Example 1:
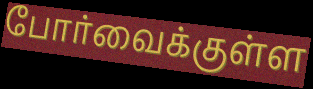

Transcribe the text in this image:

போர்வைக்குள்ள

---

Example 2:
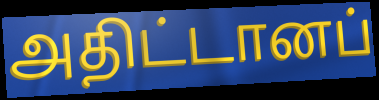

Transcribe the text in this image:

அதிட்டானப்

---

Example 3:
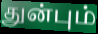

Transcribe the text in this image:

துன்பும்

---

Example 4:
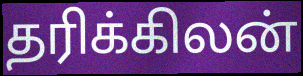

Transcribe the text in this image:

தரிக்கிலன்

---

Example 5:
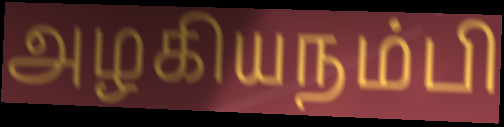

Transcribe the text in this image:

அழகியநம்பி